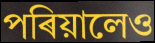
পৰিয়ালেও